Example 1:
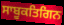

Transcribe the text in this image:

ਸਾਬੂਕਤਿਗਿਨ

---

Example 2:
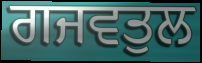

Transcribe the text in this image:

ਗਜਵਤੁਲ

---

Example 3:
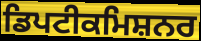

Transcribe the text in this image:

ਡਿਪਟੀਕਮਿਸ਼ਨਰ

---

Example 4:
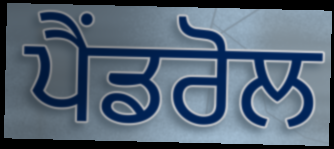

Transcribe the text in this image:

ਪੈਂਡਰੋਲ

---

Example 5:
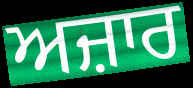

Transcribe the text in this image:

ਅਜ਼ਾਰ